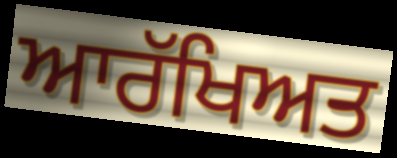
ਆਰੱਖਿਅਤ